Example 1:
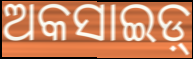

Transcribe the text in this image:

ଅକସାଇଡ଼୍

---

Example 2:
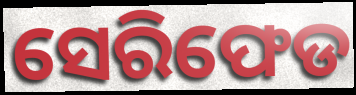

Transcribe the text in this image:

ସେରିଫେଡ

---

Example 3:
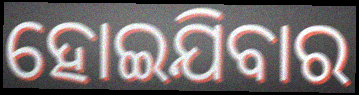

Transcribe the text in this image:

ହୋଇଯିବାର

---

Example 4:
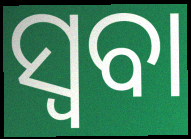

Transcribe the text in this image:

ସ୍ୱବା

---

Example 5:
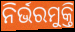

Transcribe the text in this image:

ନିର୍ଭରମୁକ୍ତି